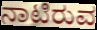
ನಾಟಿರುವ